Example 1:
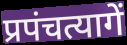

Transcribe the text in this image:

प्रपंचत्यागें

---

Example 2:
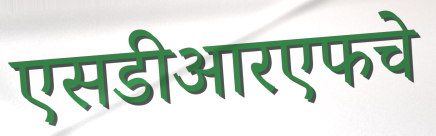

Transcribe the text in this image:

एसडीआरएफचे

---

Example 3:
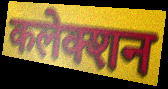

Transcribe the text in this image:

कलेक्शन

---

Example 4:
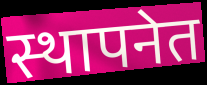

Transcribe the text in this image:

स्थापनेत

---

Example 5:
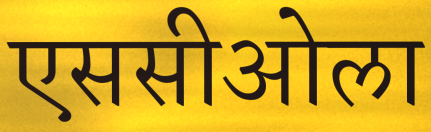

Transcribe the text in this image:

एससीओला